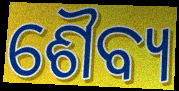
ଶୈବ୍ୟ